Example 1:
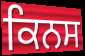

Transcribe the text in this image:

ਕਿਨਸ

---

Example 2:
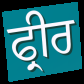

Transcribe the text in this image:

ਫ੍ਰੀਰ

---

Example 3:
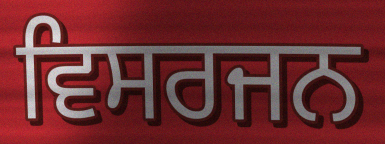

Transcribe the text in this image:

ਵਿਸਰਜਨ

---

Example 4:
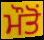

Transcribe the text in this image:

ਮੌਤੋਂ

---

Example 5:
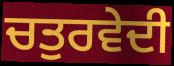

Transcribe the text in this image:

ਚਤੁਰਵੇਦੀ